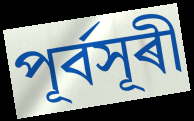
পূৰ্বসূৰী